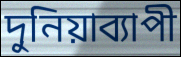
দুনিয়াব্যাপী